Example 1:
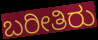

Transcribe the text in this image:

ಬರೀತಿರು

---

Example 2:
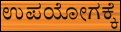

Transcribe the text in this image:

ಉಪಯೋಗಕ್ಕೆ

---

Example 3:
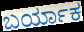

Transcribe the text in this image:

ಬರ್ಯಾಕ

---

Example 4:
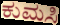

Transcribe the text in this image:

ಕುಮಸಿ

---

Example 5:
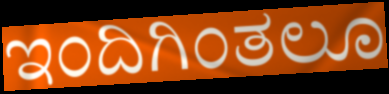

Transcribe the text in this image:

ಇಂದಿಗಿಂತಲೂ